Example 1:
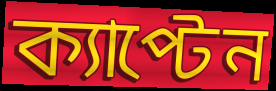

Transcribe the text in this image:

ক্যাপ্টেন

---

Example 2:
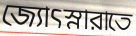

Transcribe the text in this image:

জ্যোৎস্নারাতে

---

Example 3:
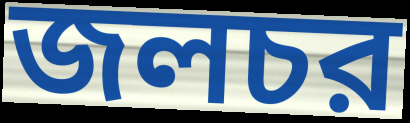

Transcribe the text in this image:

জলচর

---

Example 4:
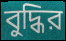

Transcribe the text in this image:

বুদ্ধির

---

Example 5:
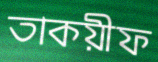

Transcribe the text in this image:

তাকয়ীফ